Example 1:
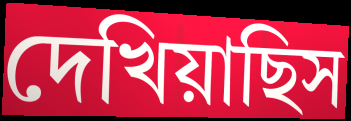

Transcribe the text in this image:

দেখিয়াছিস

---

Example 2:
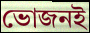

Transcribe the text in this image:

ভোজনই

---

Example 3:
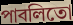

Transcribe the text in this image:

পাবলিতো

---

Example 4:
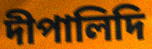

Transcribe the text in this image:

দীপালিদি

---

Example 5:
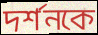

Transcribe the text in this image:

দর্শনকে